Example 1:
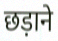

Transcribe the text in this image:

छड़ाने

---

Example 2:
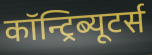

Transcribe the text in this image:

कॉन्ट्रिब्यूटर्स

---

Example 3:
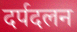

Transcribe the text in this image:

दर्पदलन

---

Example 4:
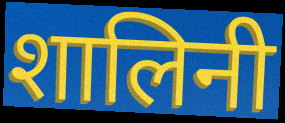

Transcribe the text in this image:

शालिनी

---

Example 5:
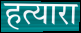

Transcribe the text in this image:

हत्यारा